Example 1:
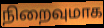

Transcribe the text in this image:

நிறைவுமாக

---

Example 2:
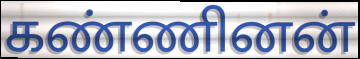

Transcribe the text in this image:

கண்ணினன்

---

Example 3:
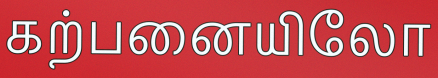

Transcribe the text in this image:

கற்பனையிலோ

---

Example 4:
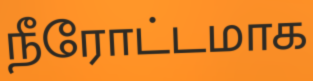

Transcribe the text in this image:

நீரோட்டமாக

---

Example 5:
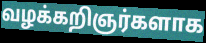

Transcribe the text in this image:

வழக்கறிஞர்களாக